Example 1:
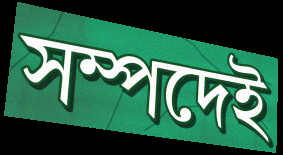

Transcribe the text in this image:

সম্পদেই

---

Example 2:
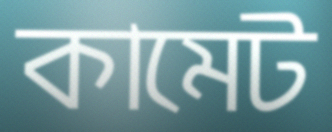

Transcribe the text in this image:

কামেট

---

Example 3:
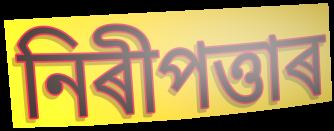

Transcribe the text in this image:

নিৰীপত্তাৰ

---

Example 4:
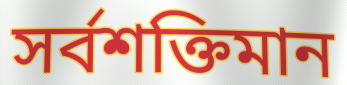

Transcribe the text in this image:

সৰ্বশক্তিমান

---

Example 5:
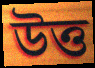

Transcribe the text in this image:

উত্ত